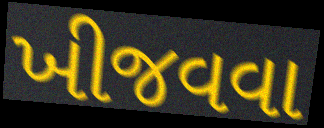
ખીજવવા